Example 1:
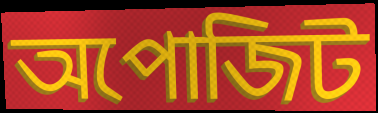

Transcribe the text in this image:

অপোজিট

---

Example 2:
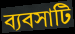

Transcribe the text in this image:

ব্যবসাটি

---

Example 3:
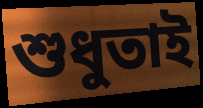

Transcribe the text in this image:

শুধুতাই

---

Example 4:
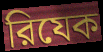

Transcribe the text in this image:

রিযেক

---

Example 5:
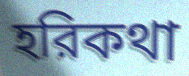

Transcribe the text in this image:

হরিকথা